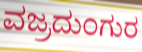
ವಜ್ರದುಂಗುರ